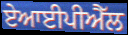
ਏਆਈਪੀਐੱਲ